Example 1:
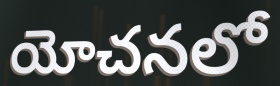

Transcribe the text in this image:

యోచనలో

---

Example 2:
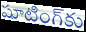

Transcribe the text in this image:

షూటింగ్‌కు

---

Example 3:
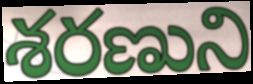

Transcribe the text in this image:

శరణుని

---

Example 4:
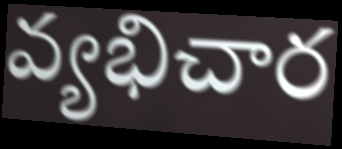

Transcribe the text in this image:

వ్యభిచార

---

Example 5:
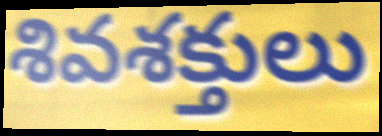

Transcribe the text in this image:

శివశక్తులు